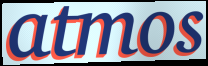
atmos